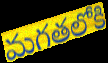
మగతలోకి